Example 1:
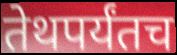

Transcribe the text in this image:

तेथपर्यंतच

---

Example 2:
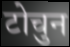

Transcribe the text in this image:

टोचुन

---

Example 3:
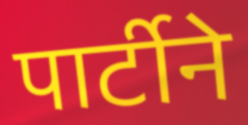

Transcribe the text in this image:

पार्टीने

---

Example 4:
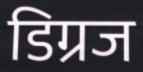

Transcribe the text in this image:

डिग्रज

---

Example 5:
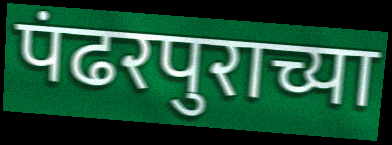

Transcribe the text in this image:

पंढरपुराच्या